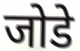
जोडे